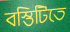
বস্তিটিতে